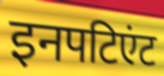
इनपटिएंट